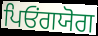
ਪਿਓਂਗਯੋਗ